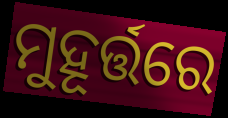
ମୁହୂର୍ତ୍ତରେ